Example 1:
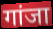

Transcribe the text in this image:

गांजा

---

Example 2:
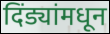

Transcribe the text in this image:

दिंड्यांमधून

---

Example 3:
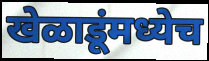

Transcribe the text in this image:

खेळाडूंमध्येच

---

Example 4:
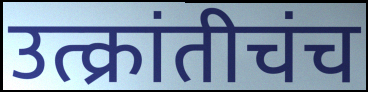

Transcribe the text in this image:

उत्क्रांतीचंच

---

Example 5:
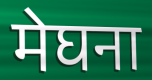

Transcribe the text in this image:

मेघना